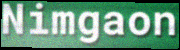
Nimgaon